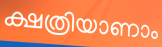
ക്ഷത്രിയാണാം